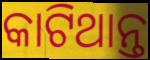
କାଟିଥାନ୍ତ